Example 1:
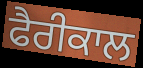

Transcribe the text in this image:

ਫੈਰੀਕਾਲ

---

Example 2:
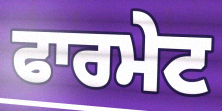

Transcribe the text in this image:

ਫਾਰਮੇਟ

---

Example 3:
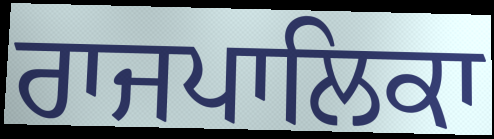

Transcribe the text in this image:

ਰਾਜਪਾਲਿਕਾ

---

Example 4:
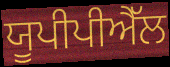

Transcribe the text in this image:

ਯੂਪੀਪੀਐੱਲ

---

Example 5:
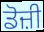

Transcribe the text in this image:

ਡੋਜ਼ੀ